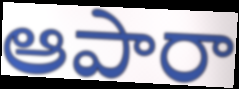
ఆపారా